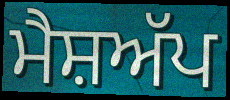
ਮੈਸ਼ਅੱਪ